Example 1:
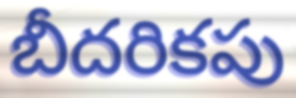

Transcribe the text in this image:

బీదరికపు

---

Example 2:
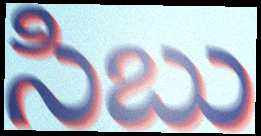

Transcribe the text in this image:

సిబు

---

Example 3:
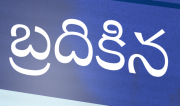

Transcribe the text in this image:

బ్రదికిన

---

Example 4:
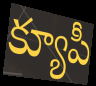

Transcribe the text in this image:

క్యూపీ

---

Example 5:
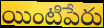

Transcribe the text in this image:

యింటిపేరు